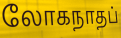
லோகநாதப்